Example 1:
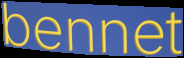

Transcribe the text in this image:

bennet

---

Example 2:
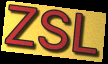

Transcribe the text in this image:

ZSL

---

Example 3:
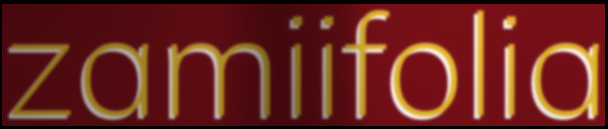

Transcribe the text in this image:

zamiifolia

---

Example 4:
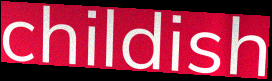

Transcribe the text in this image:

childish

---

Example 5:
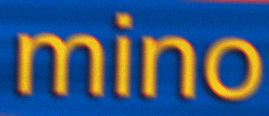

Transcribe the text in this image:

mino